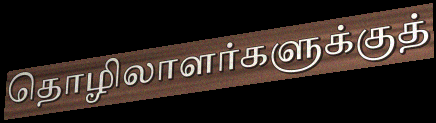
தொழிலாளர்களுக்குத்